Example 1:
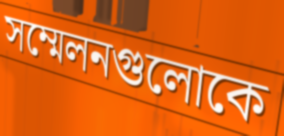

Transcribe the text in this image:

সম্মেলনগুলোকে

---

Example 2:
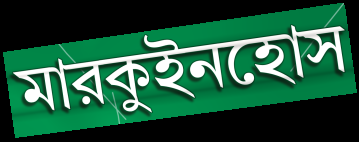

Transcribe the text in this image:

মারকুইনহোস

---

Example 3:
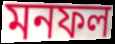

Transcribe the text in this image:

মনফল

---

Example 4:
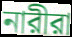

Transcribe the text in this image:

নারীরা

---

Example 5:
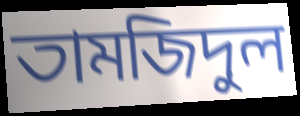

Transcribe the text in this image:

তামজিদুল